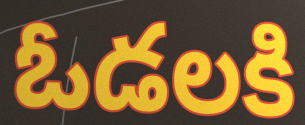
ఓడలకి